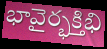
భావైర్భక్తిభి